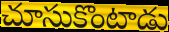
చూసుకొంటాడు